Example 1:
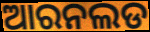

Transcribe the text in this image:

ଆରନଲଡ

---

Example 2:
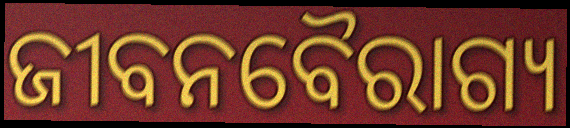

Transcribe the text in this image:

ଜୀବନବୈରାଗ୍ୟ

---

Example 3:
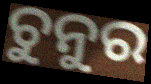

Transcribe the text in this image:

ଚୁନୁର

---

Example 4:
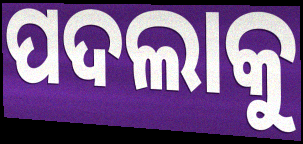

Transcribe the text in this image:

ପଦଲାକୁ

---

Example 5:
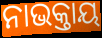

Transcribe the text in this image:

ନାଭକ୍ତାୟ